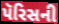
પૅરિસની